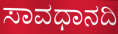
ಸಾವಧಾನದಿ